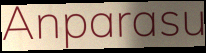
Anparasu